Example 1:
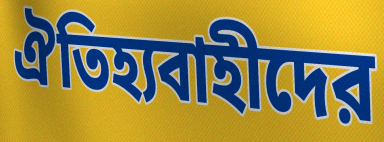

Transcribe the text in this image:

ঐতিহ্যবাহীদের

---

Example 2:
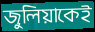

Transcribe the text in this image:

জুলিয়াকেই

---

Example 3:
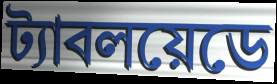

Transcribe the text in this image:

ট্যাবলয়েডে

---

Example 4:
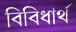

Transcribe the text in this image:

বিবিধার্থ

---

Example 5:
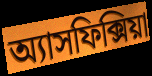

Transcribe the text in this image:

অ্যাসফিক্সিয়া